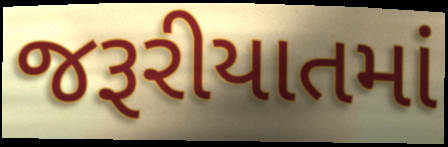
જરૂરીયાતમાં